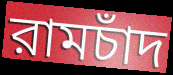
রামচাঁদ